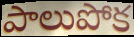
పాలుపోక